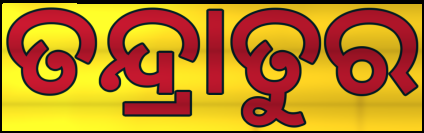
ତନ୍ଦ୍ରାତୁର